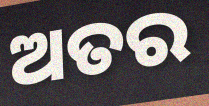
ଅତର